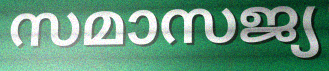
സമാസജ്യ